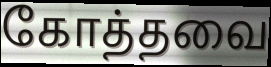
கோத்தவை